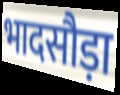
भादसौड़ा